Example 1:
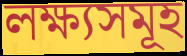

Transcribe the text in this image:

লক্ষ্যসমূহ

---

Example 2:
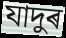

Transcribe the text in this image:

যাদুৰ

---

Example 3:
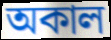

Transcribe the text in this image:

অকাল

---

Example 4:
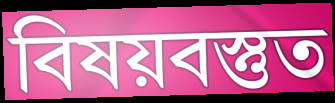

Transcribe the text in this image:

বিষয়বস্তুত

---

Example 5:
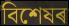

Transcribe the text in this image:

বিশেষৰ